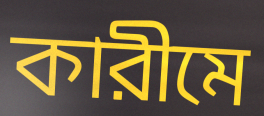
কারীমে